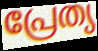
പ്രേത്യ